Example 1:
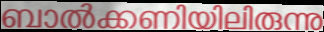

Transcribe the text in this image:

ബാൽക്കണിയിലിരുന്നു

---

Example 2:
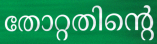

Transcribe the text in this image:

തോറ്റതിന്റെ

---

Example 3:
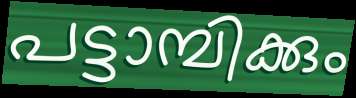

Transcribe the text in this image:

പട്ടാമ്പിക്കും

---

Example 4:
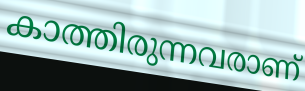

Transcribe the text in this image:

കാത്തിരുന്നവരാണ്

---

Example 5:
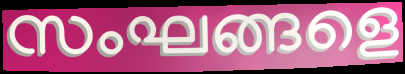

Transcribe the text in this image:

സംഘങ്ങളെ